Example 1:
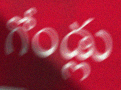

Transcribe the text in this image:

గోండ్లు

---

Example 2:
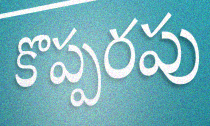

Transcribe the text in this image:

కొప్పరపు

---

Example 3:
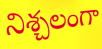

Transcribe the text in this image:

నిశ్చలంగా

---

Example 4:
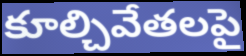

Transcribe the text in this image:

కూల్చివేతలపై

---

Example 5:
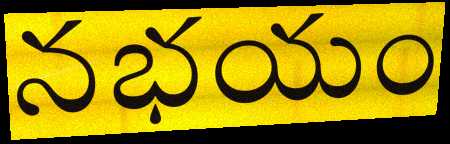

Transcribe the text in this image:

నభయం